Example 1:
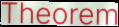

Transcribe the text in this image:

Theorem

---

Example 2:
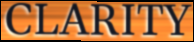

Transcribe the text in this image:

CLARITY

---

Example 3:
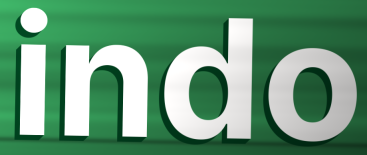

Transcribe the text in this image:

indo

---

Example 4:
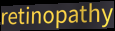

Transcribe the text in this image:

retinopathy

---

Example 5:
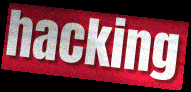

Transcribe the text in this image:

hacking